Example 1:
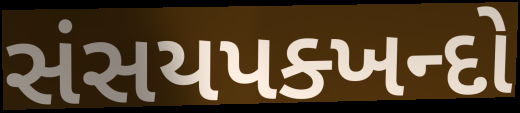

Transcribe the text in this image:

સંસયપક્ખન્દો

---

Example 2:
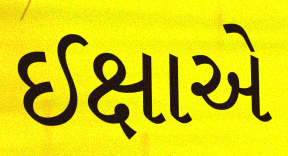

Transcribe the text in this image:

ઈક્ષાએ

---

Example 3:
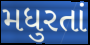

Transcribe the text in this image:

મધુરતાં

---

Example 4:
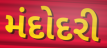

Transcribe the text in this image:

મંદોદરી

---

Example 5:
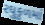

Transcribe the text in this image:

રઘુકુળમાં